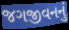
જગજીવનનું